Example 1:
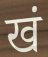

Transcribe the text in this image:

खं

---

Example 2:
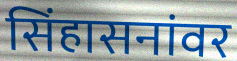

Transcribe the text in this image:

सिंहासनांवर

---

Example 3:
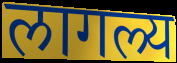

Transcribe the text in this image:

लागल्य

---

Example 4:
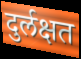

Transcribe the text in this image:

दुर्लक्षत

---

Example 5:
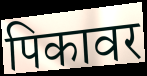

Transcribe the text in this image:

पिकावर